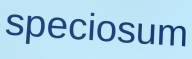
speciosum